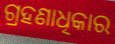
ଗ୍ରହଣାଧିକାର